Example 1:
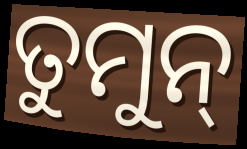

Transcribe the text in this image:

ତୁମୁନ୍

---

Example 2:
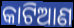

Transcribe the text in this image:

କାଟିଆଣ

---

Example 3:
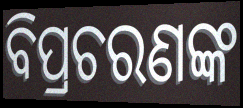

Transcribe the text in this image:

ବିପ୍ରଚରଣଙ୍କ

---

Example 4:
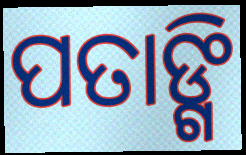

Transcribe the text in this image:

ପତାଙ୍ଗି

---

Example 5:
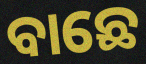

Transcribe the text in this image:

ବାଛେ